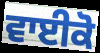
ਵਾਈਕੋ